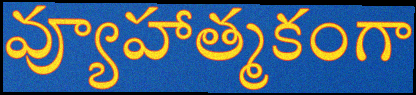
వ్యూహాత్మకంగా